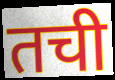
तची